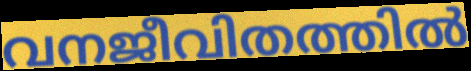
വനജീവിതത്തിൽ